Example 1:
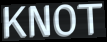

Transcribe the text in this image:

KNOT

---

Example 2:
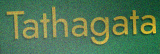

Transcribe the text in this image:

Tathagata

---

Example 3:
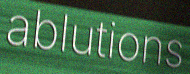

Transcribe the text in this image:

ablutions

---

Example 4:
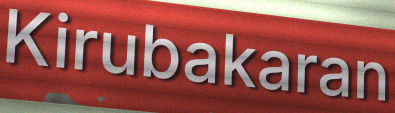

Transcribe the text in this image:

Kirubakaran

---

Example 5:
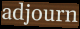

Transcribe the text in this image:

adjourn